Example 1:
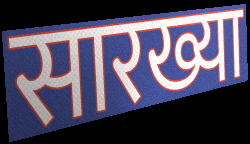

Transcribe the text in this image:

सारख्या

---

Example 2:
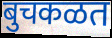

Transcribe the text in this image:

बुचकळत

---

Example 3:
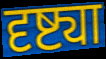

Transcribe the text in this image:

दृष्ट्या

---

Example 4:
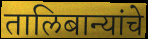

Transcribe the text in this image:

तालिबान्यांचे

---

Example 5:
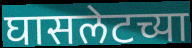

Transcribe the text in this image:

घासलेटच्या